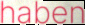
haben